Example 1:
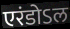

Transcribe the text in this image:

एरंडोऽल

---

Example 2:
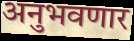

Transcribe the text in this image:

अनुभवणार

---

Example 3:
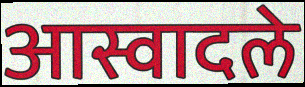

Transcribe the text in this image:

आस्वादले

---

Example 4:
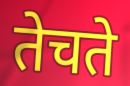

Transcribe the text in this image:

तेचते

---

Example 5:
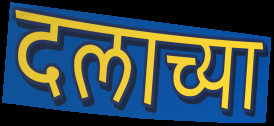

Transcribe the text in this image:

दलाच्या